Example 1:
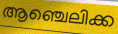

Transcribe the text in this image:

ആഞ്ചെലിക്ക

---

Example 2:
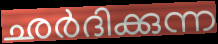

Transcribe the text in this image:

ഛർദിക്കുന്ന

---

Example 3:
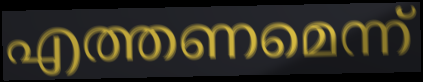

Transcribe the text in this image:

എത്തണമെന്ന്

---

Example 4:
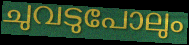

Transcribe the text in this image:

ചുവടുപോലും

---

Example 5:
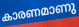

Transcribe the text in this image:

കാരണമാണു